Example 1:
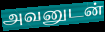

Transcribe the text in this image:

அவனுடன்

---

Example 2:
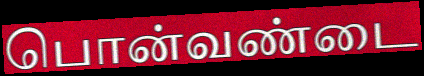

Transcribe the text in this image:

பொன்வண்டை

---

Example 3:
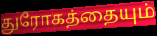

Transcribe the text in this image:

துரோகத்தையும்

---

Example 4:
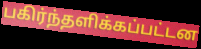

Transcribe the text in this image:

பகிர்ந்தளிக்கப்பட்டன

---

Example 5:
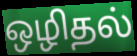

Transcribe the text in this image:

ஒழிதல்